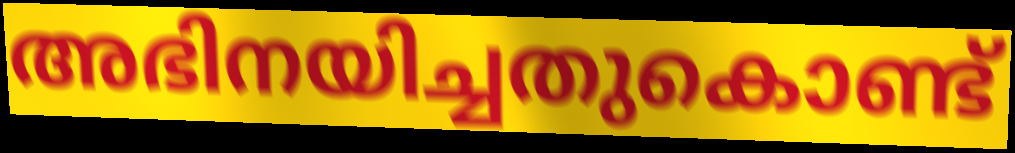
അഭിനയിച്ചതുകൊണ്ട്